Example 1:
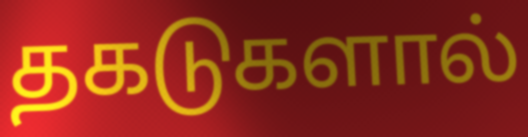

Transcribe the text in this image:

தகடுகளால்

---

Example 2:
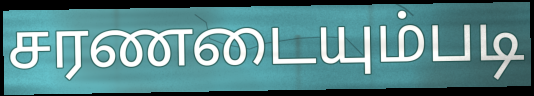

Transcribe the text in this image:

சரணடையும்படி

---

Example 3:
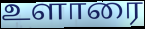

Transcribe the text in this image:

உளாரை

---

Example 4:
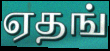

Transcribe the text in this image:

ஏதங்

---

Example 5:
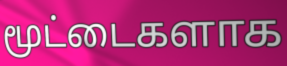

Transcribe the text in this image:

மூட்டைகளாக